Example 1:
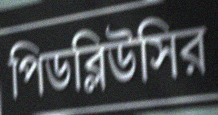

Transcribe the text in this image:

পিডব্লিউসির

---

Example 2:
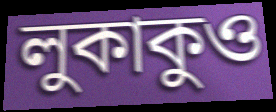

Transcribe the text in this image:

লুকাকুও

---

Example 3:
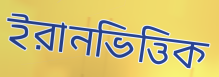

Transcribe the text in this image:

ইরানভিত্তিক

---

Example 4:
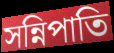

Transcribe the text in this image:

সন্নিপাতি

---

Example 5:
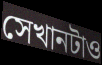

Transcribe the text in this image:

সেখানটাও